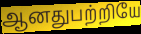
ஆனதுபற்றியே